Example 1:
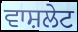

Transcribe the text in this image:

ਵਾਸ਼ਲੇਟ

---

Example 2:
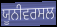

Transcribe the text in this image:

ਯੂਨੀਵਰਸਲ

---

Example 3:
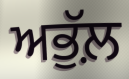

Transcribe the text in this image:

ਅਭੁੱਲ਼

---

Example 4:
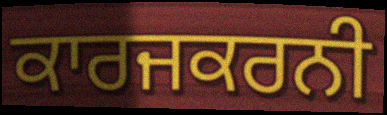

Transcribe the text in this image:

ਕਾਰਜਕਰਨੀ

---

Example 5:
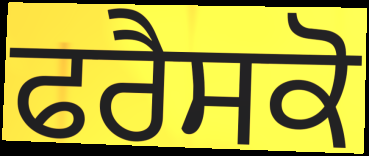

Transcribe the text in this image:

ਫਰੈਸਕੋ